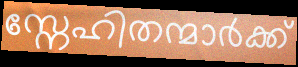
സ്നേഹിതന്മാർക്ക്